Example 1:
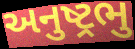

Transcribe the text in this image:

અનુષ્ટ્રભુ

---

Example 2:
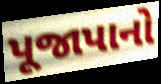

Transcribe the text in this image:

પૂજાપાનો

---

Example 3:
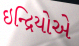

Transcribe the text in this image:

ઇન્દ્રિયોએ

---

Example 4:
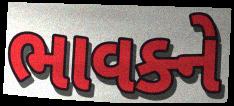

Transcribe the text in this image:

ભાવક્ને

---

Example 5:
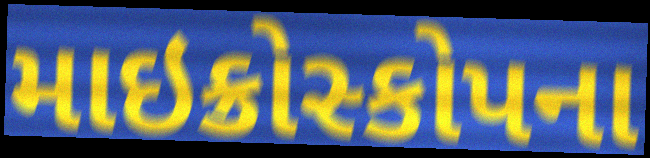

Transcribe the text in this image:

માઇક્રોસ્કોપના